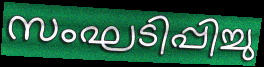
സംഘടിപ്പിച്ചു